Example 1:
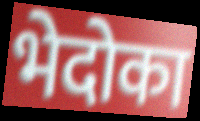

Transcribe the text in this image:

भेदोका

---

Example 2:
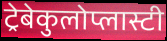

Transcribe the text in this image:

ट्रेबेकुलोप्लास्टी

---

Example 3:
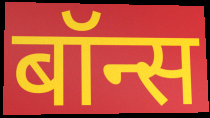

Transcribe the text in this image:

बॉन्स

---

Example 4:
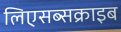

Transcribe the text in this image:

लिएसब्सक्राइब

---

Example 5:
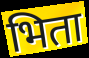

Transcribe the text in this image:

भिता